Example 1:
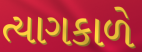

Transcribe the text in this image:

ત્યાગકાળે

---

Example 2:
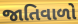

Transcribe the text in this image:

જાતિવાળો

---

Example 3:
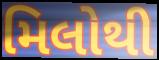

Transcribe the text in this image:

મિલોથી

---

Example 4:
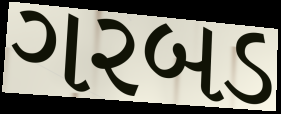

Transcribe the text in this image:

ગરબડ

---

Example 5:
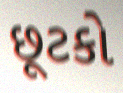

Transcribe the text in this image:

છૂટકો